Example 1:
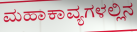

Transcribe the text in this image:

ಮಹಾಕಾವ್ಯಗಳಲ್ಲಿನ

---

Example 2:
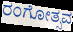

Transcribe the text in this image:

ರಂಗೋತ್ಸವ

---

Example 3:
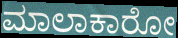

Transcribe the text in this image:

ಮಾಲಾಕಾರೋ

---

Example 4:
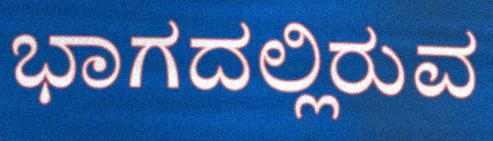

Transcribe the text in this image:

ಭಾಗದಲ್ಲಿರುವ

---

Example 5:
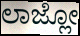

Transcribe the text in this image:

ಲಾಜ್ಲೋ